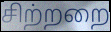
சிற்றறை